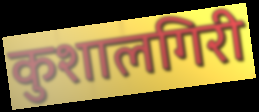
कुशालगिरी